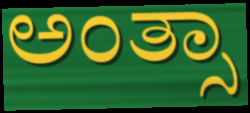
ಅಂತ್ಸಾ